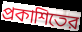
প্রকাশিতের